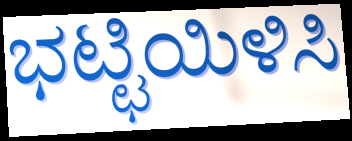
ಭಟ್ಟಿಯಿಳಿಸಿ